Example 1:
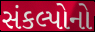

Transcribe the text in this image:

સંકલ્પોનો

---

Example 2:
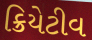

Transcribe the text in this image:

ક્રિયેટીવ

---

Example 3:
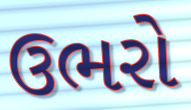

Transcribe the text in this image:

ઉભરો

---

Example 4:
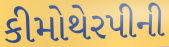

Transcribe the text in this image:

કીમોથેરપીની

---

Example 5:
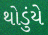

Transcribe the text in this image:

થોડુંયે